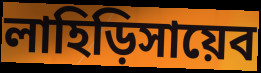
লাহিড়িসায়েব